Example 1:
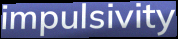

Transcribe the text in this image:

impulsivity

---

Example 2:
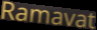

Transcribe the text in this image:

Ramavat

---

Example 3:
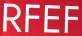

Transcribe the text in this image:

RFEF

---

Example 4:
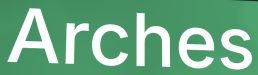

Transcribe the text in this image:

Arches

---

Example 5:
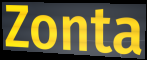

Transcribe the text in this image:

Zonta